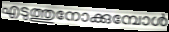
എടുത്തുനോക്കുമ്പോൾ